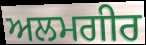
ਅਲਮਗੀਰ